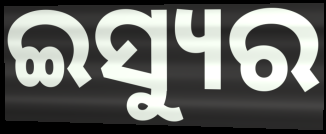
ଇସ୍ୟୁର